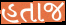
હતાજ